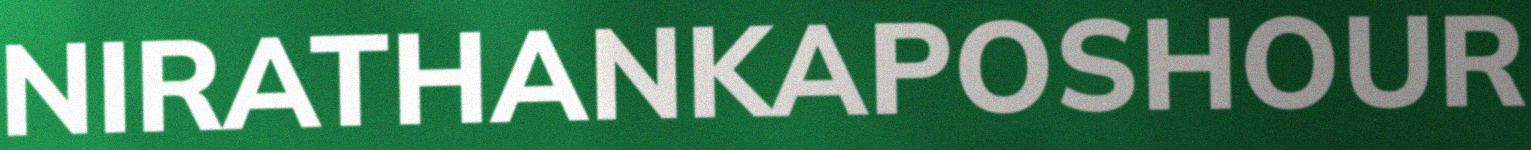
NIRATHANKAPOSHOUR